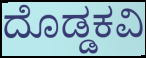
ದೊಡ್ಡಕವಿ